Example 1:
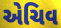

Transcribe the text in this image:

એચિવ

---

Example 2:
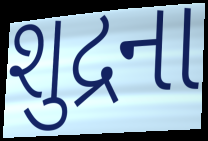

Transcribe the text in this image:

શુદ્રના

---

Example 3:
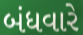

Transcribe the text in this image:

બંધવારે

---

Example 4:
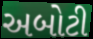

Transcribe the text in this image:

અબોટી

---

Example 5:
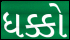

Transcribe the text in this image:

ધક્કો